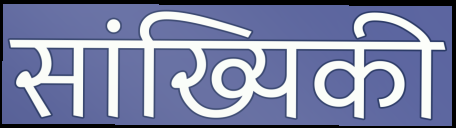
सांख्यिकी